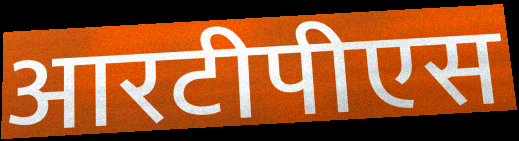
आरटीपीएस